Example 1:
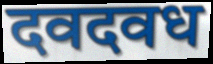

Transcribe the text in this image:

दवदवध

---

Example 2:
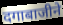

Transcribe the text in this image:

दगाबाजीने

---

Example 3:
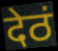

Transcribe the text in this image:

देठं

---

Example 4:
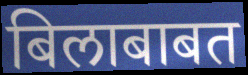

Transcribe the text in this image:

बिलाबाबत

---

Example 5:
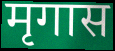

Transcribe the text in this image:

मृगास